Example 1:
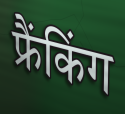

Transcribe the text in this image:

फ्रैंकिंग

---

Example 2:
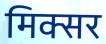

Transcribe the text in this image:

मिक्सर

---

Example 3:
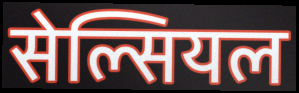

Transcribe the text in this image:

सेल्सियल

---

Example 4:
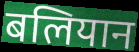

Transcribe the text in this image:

बलियान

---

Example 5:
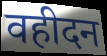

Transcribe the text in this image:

वहीदन